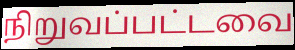
நிறுவப்பட்டவை